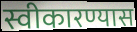
स्वीकारण्यास